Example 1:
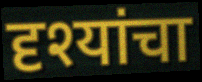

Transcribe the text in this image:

दृश्यांचा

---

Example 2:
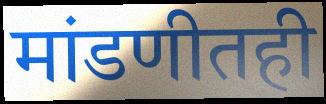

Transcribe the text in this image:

मांडणीतही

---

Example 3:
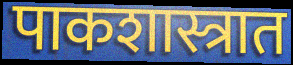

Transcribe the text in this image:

पाकशास्त्रात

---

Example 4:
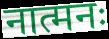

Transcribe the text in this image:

नात्मनः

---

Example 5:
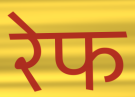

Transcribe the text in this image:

रेफ